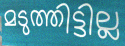
മടുത്തിട്ടില്ല